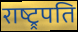
राष्ट्र्रपति